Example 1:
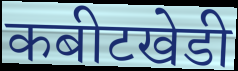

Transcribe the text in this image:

कबीटखेडी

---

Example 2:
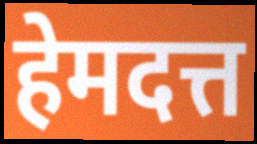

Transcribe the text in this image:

हेमदत्त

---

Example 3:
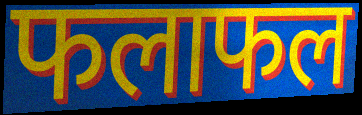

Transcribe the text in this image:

फलाफल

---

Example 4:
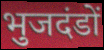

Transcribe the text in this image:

भुजदंडों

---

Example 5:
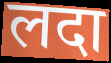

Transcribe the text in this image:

लदा